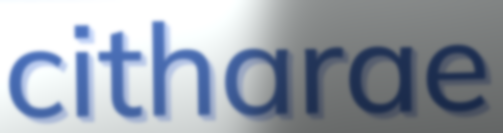
citharae